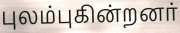
புலம்புகின்றனர்